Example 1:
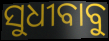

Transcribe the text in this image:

ସୁଧୀବାବୁ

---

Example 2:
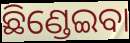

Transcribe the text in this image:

ଛିଣ୍ଡେଇବା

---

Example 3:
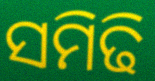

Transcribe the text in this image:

ସମିଢି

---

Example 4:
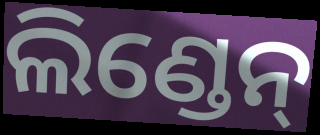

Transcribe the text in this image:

ଲିଣ୍ଡେନ୍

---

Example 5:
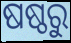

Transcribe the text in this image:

ଷଷ୍ଠରୁ